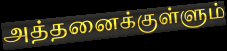
அத்தனைக்குள்ளும்